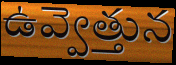
ఉవ్వెత్తున